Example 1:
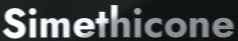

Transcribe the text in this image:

Simethicone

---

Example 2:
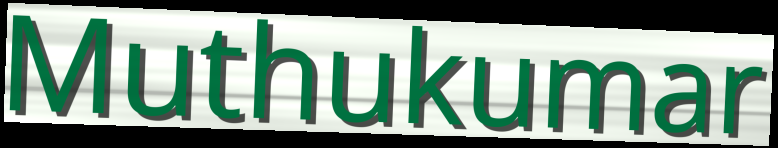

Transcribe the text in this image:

Muthukumar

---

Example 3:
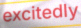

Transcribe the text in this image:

excitedly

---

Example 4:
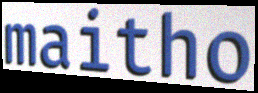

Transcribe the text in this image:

maitho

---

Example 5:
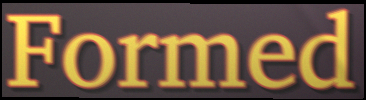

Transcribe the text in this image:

Formed